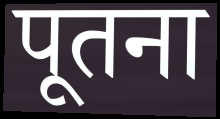
पूतना